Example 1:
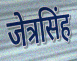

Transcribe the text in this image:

जेत्रसिंह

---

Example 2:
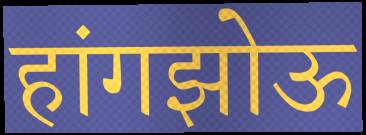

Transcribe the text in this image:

हांगझोऊ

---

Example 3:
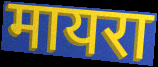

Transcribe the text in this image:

मायरा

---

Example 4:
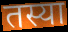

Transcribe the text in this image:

तस्या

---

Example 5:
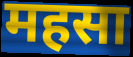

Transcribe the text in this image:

महसा